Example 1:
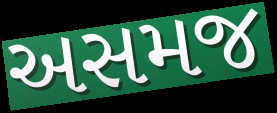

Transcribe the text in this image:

અસમજ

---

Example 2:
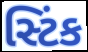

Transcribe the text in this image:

સ્ટિંક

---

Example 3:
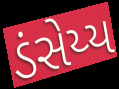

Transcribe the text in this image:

ડંસેય્ય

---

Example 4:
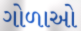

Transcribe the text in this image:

ગોળાઓ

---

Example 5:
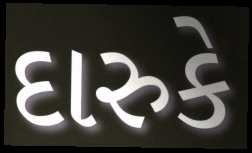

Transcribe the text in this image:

દારુકે